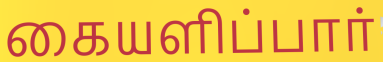
கையளிப்பார்